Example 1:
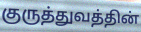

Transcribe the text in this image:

குருத்துவத்தின்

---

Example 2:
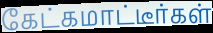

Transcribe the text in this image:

கேட்கமாட்டீர்கள்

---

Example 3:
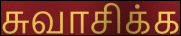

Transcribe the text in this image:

சுவாசிக்க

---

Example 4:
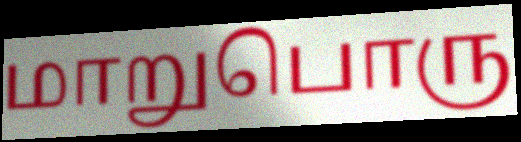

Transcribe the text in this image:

மாறுபொரு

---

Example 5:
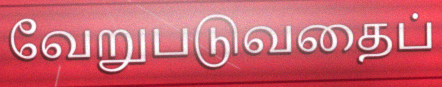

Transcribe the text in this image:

வேறுபடுவதைப்